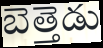
బెత్తెడు